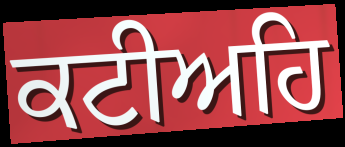
ਕਟੀਅਹਿ